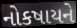
નોકષાયને